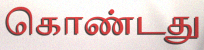
கொண்டது